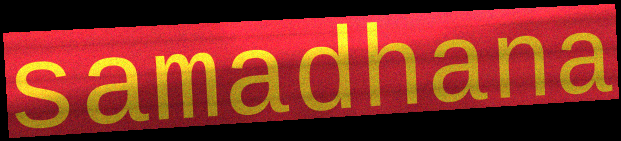
samadhana